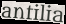
antilia